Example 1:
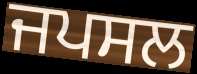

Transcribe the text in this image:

ਜਪਸਲ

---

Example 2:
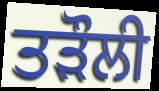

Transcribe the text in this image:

ਤੜੌਲੀ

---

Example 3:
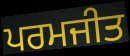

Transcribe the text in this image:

ਪਰਮਜੀਤ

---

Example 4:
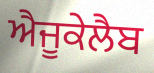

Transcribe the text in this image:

ਐਜੂਕੇਲੈਬ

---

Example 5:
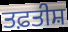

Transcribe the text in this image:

ਤਫ਼ਤੀਸ਼